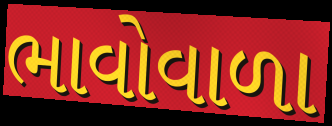
ભાવોવાળા